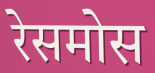
रेसमोस